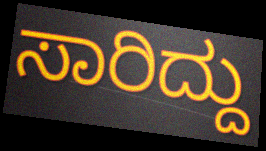
ಸಾರಿದ್ದು